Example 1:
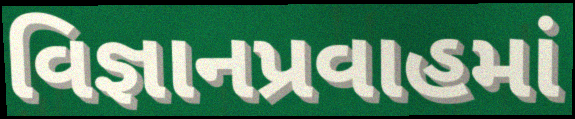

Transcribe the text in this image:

વિજ્ઞાનપ્રવાહમાં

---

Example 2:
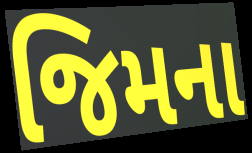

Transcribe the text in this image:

જિમના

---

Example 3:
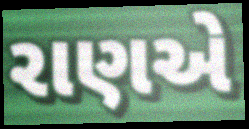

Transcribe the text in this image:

રાણએ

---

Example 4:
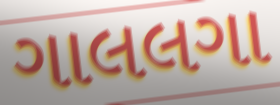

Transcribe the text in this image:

ગાલલગા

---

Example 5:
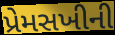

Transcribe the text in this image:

પ્રેમસખીની